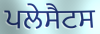
ਪਲੇਸੈਟਸ